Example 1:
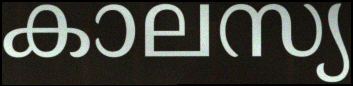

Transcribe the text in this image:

കാലസ്യ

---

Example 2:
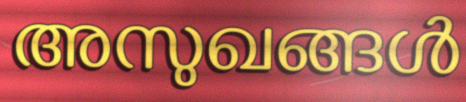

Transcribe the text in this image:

അസുഖങ്ങൾ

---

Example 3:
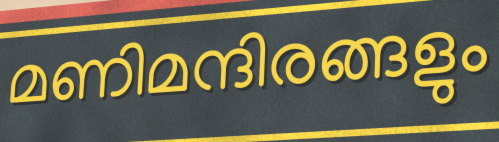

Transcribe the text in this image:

മണിമന്ദിരങ്ങളും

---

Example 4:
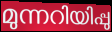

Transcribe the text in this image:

മുന്നറിയിപ്പു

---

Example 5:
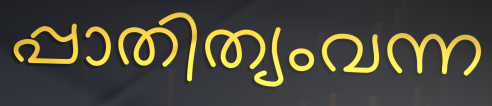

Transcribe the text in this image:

പ്പാതിത്യംവന്ന